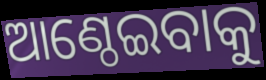
ଆଣ୍ଠେଇବାକୁ